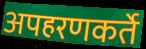
अपहरणकर्ते